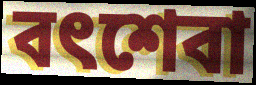
বৎশেবা